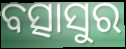
ବତ୍ସାସୁର